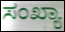
ಸಂಖ್ಯಾ